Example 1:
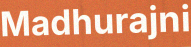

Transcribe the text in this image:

Madhurajni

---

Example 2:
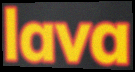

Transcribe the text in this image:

lava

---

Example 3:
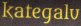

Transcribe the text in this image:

kategalu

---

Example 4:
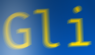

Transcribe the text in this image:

Gli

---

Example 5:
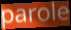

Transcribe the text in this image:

parole